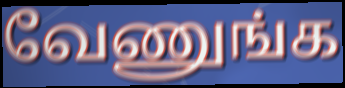
வேணுங்க